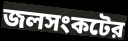
জলসংকটের